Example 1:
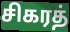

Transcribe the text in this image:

சிகரத்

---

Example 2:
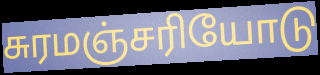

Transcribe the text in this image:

சுரமஞ்சரியோடு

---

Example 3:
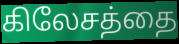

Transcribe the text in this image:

கிலேசத்தை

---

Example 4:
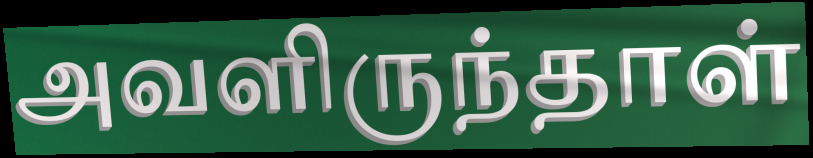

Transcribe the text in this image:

அவளிருந்தாள்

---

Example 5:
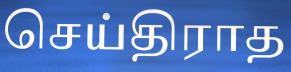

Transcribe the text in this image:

செய்திராத